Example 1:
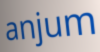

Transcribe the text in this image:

anjum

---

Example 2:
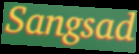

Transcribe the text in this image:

Sangsad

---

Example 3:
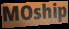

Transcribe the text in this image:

MOship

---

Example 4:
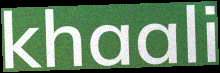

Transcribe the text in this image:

khaali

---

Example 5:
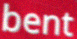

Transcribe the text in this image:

bent